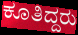
ಕೂತಿದ್ದರು